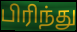
பிரிந்து